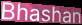
Bhashan